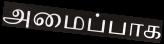
அமைப்பாக